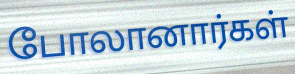
போலானார்கள்